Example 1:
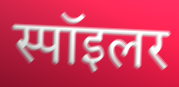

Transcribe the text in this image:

स्पॉइलर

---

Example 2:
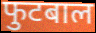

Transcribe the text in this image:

फुटबाल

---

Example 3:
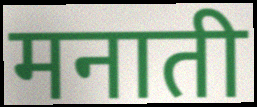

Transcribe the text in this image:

मनाती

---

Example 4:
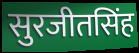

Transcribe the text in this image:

सुरजीतसिंह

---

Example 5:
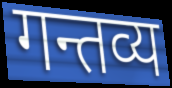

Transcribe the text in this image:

गन्तव्य